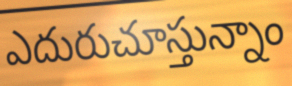
ఎదురుచూస్తున్నాం